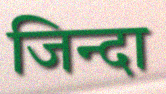
जिन्‍दा